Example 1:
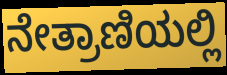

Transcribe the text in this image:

ನೇತ್ರಾಣಿಯಲ್ಲಿ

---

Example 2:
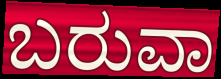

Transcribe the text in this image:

ಬರುವಾ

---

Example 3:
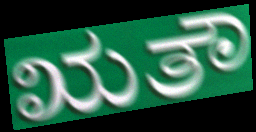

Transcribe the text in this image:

ಋತೌ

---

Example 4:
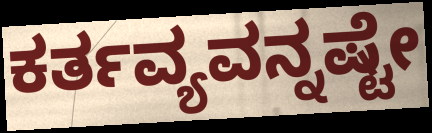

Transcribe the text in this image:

ಕರ್ತವ್ಯವನ್ನಷ್ಟೇ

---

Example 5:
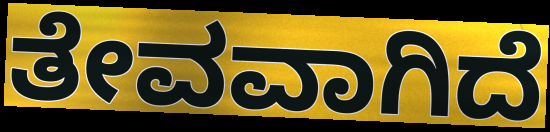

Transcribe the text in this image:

ತೇವವಾಗಿದೆ